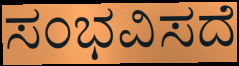
ಸಂಭವಿಸದೆ